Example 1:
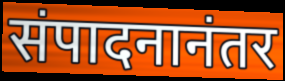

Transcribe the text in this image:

संपादनानंतर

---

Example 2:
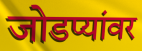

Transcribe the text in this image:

जोडप्यांवर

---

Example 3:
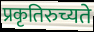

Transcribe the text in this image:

प्रकृतिरुच्यते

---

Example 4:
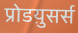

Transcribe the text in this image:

प्रोडय़ुसर्स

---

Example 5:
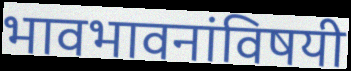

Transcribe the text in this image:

भावभावनांविषयी